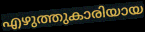
എഴുത്തുകാരിയായ